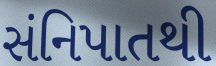
સંનિપાતથી